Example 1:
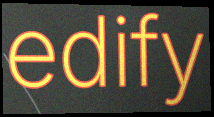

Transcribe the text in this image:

edify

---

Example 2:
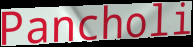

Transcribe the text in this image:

Pancholi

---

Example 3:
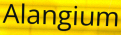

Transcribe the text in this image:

Alangium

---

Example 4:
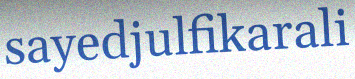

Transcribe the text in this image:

sayedjulfikarali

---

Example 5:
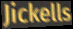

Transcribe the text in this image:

Jickells